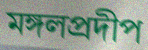
মঙ্গলপ্রদীপ